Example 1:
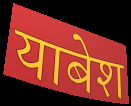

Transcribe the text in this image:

याबेश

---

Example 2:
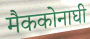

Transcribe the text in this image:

मैककोनाघी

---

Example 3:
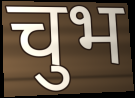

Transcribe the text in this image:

चुभ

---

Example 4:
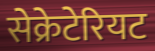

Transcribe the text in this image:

सेक्रेटेरियट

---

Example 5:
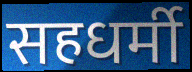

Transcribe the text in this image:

सहधर्मी